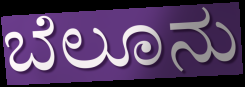
ಬೆಲೂನು